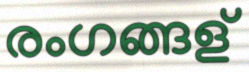
രംഗങ്ങള്